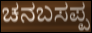
ಚನಬಸಪ್ಪ